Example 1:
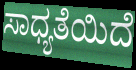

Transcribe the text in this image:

ಸಾಧ್ಯತೆಯಿದೆ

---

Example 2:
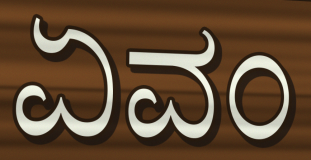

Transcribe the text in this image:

ಏವಂ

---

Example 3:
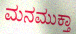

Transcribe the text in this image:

ಮನಮುಕ್ತಾ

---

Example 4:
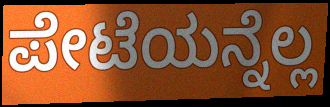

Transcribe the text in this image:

ಪೇಟೆಯನ್ನೆಲ್ಲ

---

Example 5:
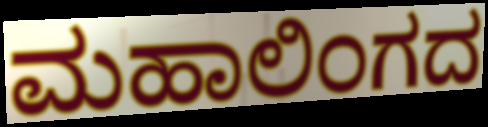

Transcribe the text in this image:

ಮಹಾಲಿಂಗದ